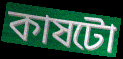
কাষটো